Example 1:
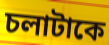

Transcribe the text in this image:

চলাটাকে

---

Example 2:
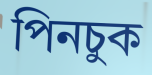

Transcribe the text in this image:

পিনচুক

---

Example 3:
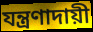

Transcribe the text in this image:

যন্ত্রণাদায়ী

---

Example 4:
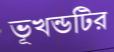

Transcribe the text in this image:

ভূখন্ডটির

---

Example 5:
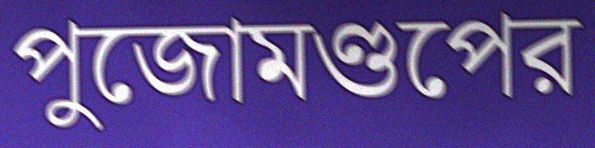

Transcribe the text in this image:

পুজোমণ্ডপের